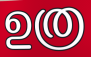
ഉത്ര